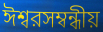
ঈশ্বরসম্বন্ধীয়